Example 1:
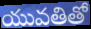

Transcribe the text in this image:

యువతితో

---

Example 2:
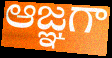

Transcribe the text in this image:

ఆజ్ఞగా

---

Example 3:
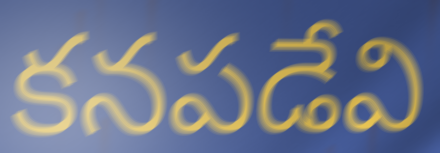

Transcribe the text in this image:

కనపడేవి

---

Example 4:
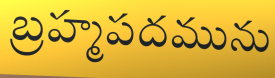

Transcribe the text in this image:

బ్రహ్మపదమును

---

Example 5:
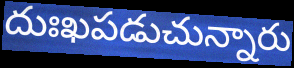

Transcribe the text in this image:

దుఃఖపడుచున్నారు